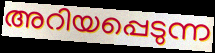
അറിയപ്പെടുന്ന